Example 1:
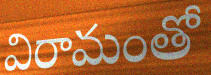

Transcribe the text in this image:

విరామంతో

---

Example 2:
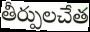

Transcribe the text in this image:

తీర్పులచేత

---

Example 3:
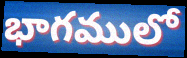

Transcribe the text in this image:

భాగములో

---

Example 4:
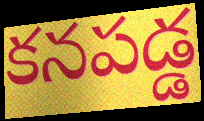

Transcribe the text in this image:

కనపడ్డ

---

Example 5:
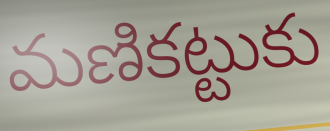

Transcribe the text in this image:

మణికట్టుకు